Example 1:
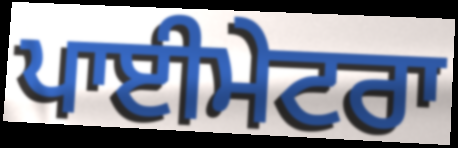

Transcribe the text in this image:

ਪਾਈਮੇਟਰਾ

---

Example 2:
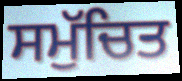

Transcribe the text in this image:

ਸਮੁੱਚਿਤ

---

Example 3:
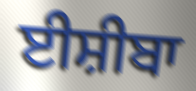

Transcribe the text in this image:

ਈਸ਼ੀਬਾ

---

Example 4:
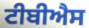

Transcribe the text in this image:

ਟੀਬੀਐਸ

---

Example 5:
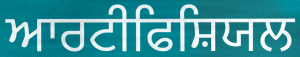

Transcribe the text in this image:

ਆਰਟੀਫਿਸ਼ਿਯਲ